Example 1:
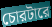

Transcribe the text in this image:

চোরটারে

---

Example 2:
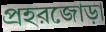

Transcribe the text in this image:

প্রহরজোড়া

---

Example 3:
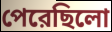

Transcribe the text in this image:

পেরেছিলো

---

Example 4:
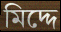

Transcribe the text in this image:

মিদ্দে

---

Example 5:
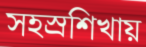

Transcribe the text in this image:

সহস্রশিখায়